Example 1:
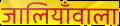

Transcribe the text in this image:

जालियाँवाला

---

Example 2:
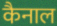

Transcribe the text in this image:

कैनाल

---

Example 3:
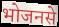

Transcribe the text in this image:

भोजनसे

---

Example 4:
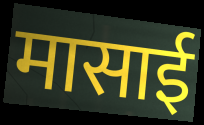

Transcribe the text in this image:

मासाई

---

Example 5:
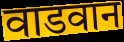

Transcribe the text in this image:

वाडवान